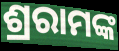
ଶ୍ରରାମଙ୍କ